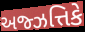
અજ્ઝત્તિકે